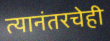
त्यानंतरचेही